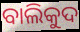
ବାଲିକୁଦ